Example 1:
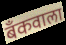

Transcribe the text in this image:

बँकवाला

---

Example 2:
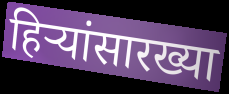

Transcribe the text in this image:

हिऱ्यांसारख्या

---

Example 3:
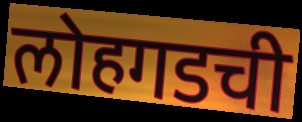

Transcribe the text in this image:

लोहगडची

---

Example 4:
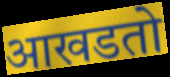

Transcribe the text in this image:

आखडतो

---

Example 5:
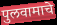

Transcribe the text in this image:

पुलवामाचे